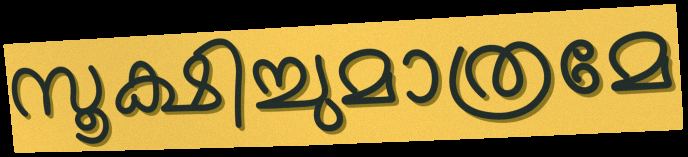
സൂക്ഷിച്ചുമാത്രമേ